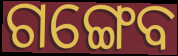
ଗଙ୍ଗେବ